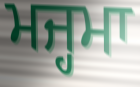
ਮਜ੍ਹਮਾ